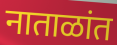
नाताळांत